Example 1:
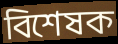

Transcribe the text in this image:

বিশেষক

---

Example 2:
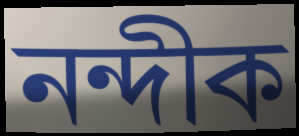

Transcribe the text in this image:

নন্দীক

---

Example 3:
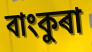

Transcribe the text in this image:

বাংকুৰা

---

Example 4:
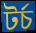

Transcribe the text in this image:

টৰ্চ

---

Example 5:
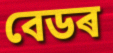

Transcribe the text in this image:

বেডৰ